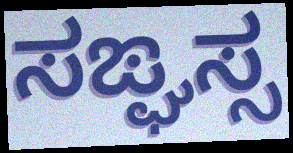
ಸಙ್ಘಸ್ಸ